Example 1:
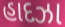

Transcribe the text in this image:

હાદઝા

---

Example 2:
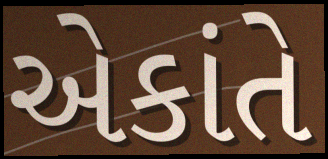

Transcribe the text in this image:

એકાંતે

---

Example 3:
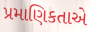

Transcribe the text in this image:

પ્રમાણિકતાએ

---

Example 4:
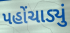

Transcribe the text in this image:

પહોંચાડ્યું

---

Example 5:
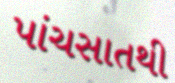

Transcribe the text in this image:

પાંચસાતથી